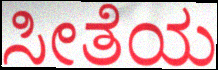
ಸೀತೆಯ